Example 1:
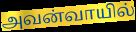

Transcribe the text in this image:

அவன்வாயில்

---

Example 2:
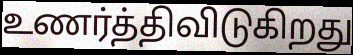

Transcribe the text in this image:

உணர்த்திவிடுகிறது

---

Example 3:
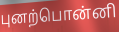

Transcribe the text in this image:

புனற்பொன்னி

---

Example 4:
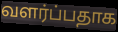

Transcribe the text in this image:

வளர்ப்பதாக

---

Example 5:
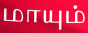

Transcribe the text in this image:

மாயும்